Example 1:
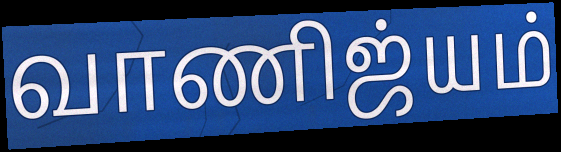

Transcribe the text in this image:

வாணிஜ்யம்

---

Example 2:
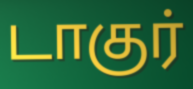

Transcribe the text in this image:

டாகுர்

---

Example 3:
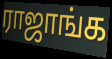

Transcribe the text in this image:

ராஜாங்க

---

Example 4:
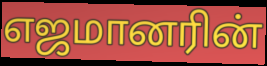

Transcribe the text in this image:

எஜமானரின்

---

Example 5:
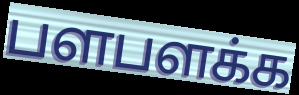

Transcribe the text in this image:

பளபளக்க